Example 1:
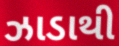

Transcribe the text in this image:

ઝાડાથી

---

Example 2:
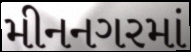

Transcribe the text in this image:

મીનનગરમાં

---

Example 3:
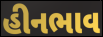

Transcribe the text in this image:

હીનભાવ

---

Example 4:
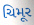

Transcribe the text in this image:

ચિમૂર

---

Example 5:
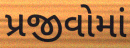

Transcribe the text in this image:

પ્રજીવોમાં